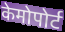
केमोपोर्ट